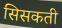
सिसकती